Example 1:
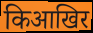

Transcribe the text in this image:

किआखिर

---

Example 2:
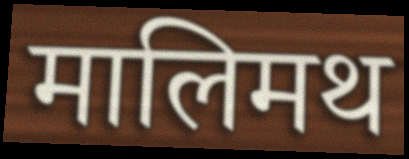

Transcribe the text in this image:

मालिमथ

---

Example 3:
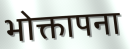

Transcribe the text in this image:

भोक्तापना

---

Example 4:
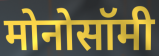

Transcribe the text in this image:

मोनोसॉमी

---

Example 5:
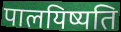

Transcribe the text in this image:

पालयिष्यति